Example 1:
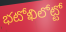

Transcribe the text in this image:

భటోఖిలోట్టో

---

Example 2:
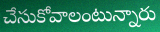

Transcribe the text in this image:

చేసుకోవాలంటున్నారు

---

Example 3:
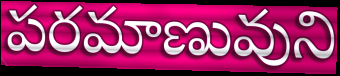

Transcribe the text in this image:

పరమాణువుని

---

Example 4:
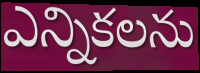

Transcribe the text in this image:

ఎన్నికలను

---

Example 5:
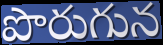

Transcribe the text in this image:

పొరుగున